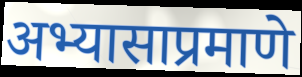
अभ्यासाप्रमाणे